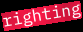
righting